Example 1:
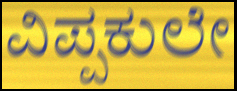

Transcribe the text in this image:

ವಿಪ್ಪಕುಲೇ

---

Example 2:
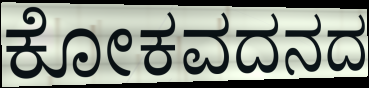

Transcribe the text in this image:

ಕೋಕವದನದ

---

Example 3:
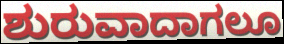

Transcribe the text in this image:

ಶುರುವಾದಾಗಲೂ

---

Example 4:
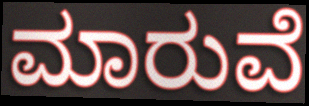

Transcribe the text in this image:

ಮಾರುವೆ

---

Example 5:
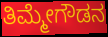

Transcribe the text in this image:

ತಿಮ್ಮೇಗೌಡನ